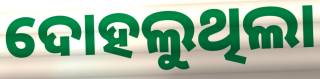
ଦୋହଲୁଥିଲା